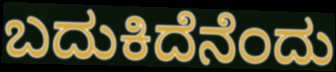
ಬದುಕಿದೆನೆಂದು